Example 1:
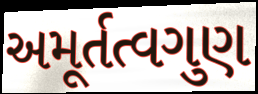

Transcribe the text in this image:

અમૂર્તત્વગુણ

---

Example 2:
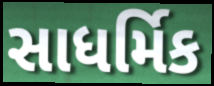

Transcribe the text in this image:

સાધર્મિક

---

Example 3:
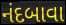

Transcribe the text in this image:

નંદબાવા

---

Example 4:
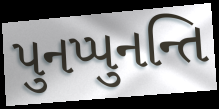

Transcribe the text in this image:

પુનપ્પુનન્તિ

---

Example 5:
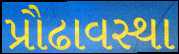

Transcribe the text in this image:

પ્રૌઢાવસ્થા